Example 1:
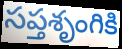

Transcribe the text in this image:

సప్తశృంగికి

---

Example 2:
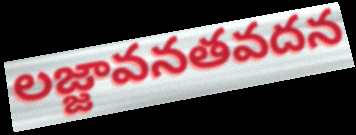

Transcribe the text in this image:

లజ్జావనతవదన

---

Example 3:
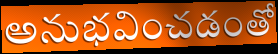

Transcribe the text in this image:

అనుభవించడంతో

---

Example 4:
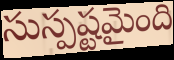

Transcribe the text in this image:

సుస్పష్టమైంది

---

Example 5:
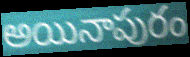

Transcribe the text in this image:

అయినాపురం